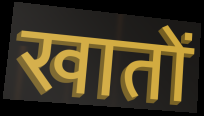
खातों